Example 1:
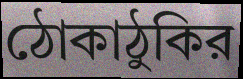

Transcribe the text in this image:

ঠোকাঠুকির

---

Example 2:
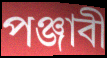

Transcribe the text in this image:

পঞ্জাবী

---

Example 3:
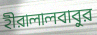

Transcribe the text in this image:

হীরালালবাবুর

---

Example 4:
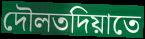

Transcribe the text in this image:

দৌলতদিয়াতে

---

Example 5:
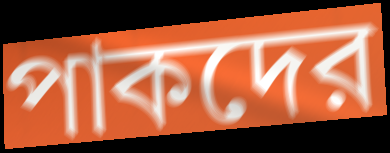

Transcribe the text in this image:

পাকদের